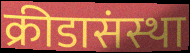
क्रीडासंस्था